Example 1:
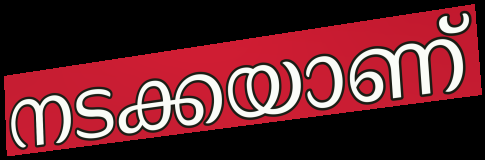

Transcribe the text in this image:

നടക്കയാണ്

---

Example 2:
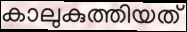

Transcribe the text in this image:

കാലുകുത്തിയത്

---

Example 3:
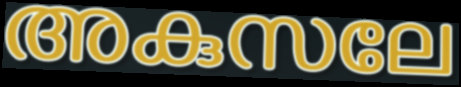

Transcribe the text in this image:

അകുസലേ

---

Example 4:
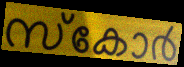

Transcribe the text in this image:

സ്കോർ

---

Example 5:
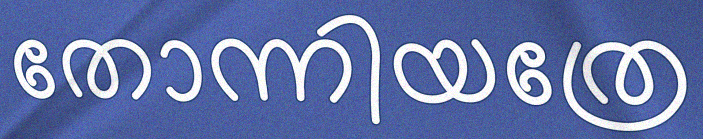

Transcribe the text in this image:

തോന്നിയത്രേ